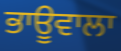
ਭਾਊਵਾਲਾ